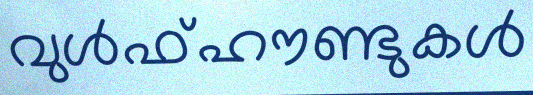
വുൾഫ്ഹൗണ്ടുകൾ